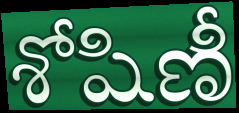
శోషిణీ